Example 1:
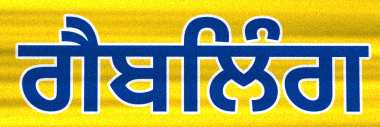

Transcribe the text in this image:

ਗੈਬਲਿੰਗ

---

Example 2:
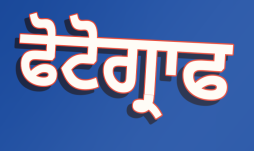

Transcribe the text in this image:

ਫੋਟੋਗ੍ਰਾਫ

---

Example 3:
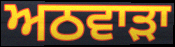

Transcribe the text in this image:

ਅਠਵਾੜਾ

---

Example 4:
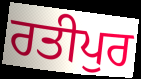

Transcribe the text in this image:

ਰਤੀਪੁਰ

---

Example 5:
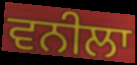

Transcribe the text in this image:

ਵਨੀਲਾ